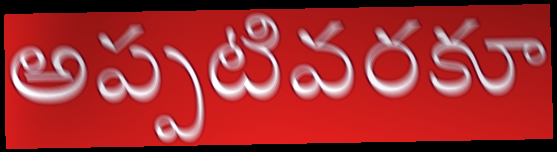
అప్పటివరకూ